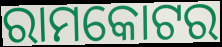
ରାମକୋଟର